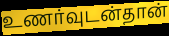
உணர்வுடன்தான்